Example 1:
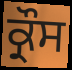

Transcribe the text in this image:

ਕ੍ਰੌਸ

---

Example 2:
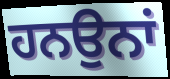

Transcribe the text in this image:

ਹਨਉਨਾਂ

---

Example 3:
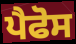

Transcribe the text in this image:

ਪੈਫੋਸ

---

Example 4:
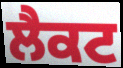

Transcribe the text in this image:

ਲੈਕਟ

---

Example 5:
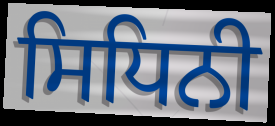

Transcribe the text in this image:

ਸਿਧਿਨੀ